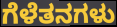
ಗೆಳೆತನಗಳು